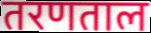
तरणताल